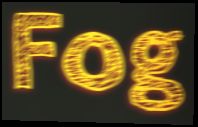
Fog